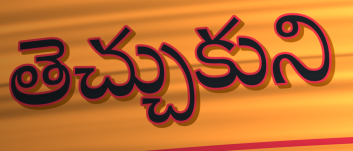
తెచ్చుకుని